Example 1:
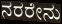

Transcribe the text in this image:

ನರರೇನು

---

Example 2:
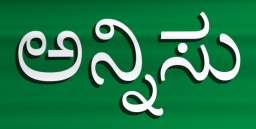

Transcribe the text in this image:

ಅನ್ನಿಸು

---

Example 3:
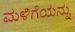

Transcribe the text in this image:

ಮಳಿಗೆಯನ್ನು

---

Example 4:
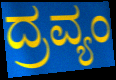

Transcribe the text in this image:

ದ್ರವ್ಯಂ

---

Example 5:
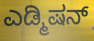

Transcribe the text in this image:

ಎಡ್ಮಿಷನ್